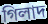
গিলাদ